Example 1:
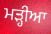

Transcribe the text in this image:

ਮੜ੍ਹੀਆ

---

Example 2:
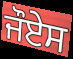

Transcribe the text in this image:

ਜੌਏਸ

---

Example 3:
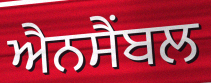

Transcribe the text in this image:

ਐਨਸੈਂਬਲ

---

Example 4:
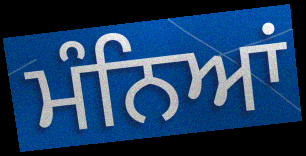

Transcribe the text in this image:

ਮੰਨਿਆਂ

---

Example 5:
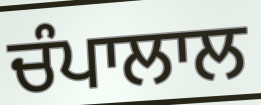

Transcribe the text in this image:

ਚੰਪਾਲਾਲ